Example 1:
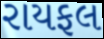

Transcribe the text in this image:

રાયફલ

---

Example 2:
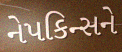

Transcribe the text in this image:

નેપકિન્સને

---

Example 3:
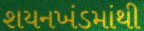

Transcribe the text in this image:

શયનખંડમાંથી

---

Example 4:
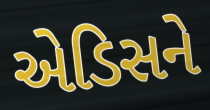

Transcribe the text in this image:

એડિસને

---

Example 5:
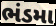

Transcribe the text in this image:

ભંડમા